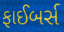
ફાઈબર્સ